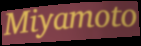
Miyamoto